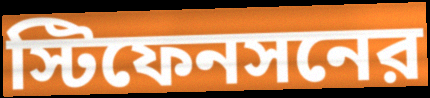
স্টিফেনসনের